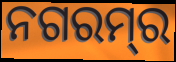
ନଗରମ୍‌ର